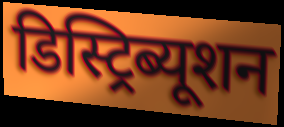
डिस्ट्रिब्यूशन